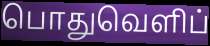
பொதுவெளிப்